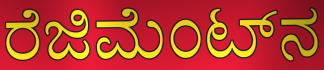
ರೆಜಿಮೆಂಟ್‌ನ